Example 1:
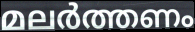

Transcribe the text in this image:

മലർത്തണം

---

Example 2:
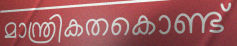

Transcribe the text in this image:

മാന്ത്രികതകൊണ്ട്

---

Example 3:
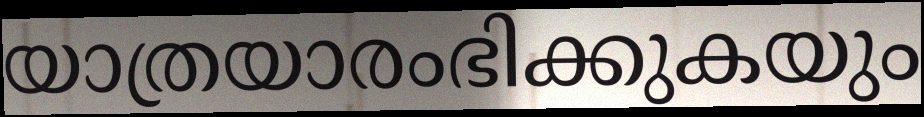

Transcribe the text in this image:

യാത്രയാരംഭിക്കുകയും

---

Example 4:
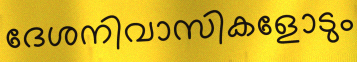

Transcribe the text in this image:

ദേശനിവാസികളോടും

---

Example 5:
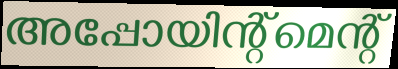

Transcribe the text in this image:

അപ്പോയിന്റ്മെന്റ്